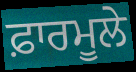
ਫ਼ਾਰਮੂਲੇ